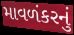
માવળંકરનું